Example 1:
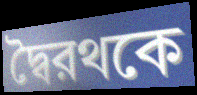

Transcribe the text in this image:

দ্বৈরথকে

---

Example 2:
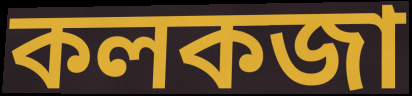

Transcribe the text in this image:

কলকজা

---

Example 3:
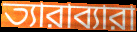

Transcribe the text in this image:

ত্যারাব্যারা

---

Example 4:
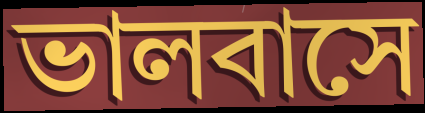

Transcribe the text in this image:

ভালবাসে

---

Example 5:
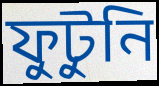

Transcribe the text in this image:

ফুটুনি